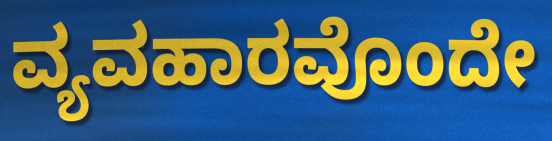
ವ್ಯವಹಾರವೊಂದೇ